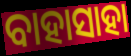
ବାହାସାହା